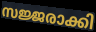
സജ്ജരാക്കി